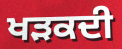
ਖੜਕਦੀ